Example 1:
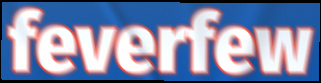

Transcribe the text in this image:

feverfew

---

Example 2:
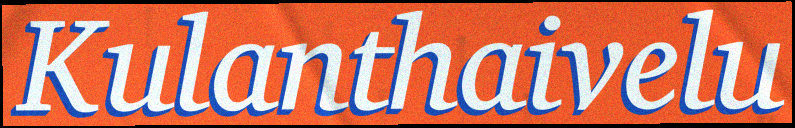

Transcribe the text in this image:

Kulanthaivelu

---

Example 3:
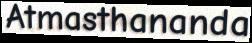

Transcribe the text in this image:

Atmasthananda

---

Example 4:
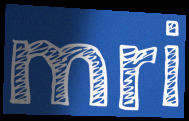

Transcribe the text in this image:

mri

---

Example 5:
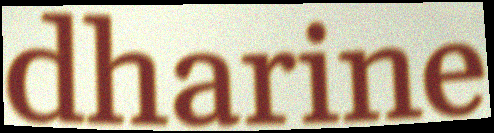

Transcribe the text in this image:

dharine